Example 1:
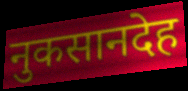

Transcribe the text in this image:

नुकसानदेह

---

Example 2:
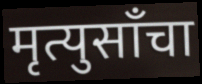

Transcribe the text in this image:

मृत्युसाँचा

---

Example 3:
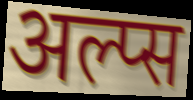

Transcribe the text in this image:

अल्प्स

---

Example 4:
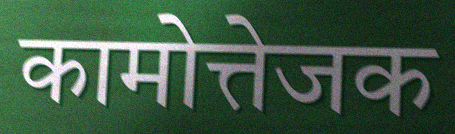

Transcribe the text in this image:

कामोत्तेजक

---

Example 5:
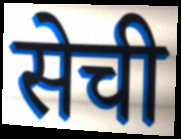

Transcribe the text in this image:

सेची